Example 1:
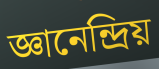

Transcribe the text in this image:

জ্ঞানেন্দ্ৰিয়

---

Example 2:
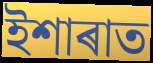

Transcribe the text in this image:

ইশাৰাত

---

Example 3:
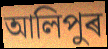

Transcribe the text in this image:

আলিপুৰ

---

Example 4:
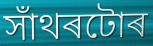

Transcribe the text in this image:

সাঁথৰটোৰ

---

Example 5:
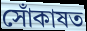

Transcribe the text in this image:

সোঁকাষত